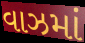
વાઝમાં